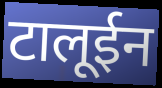
टालूईन